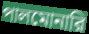
পালমোনারি